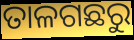
ତାଳଗଛରୁ